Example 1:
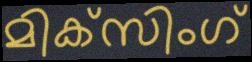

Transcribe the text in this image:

മിക്‌സിംഗ്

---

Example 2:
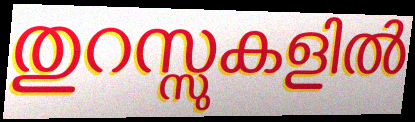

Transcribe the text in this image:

തുറസ്സുകളിൽ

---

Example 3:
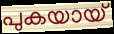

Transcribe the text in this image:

പുകയായ്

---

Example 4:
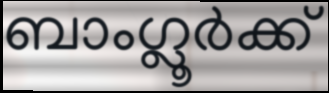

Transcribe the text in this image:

ബാംഗ്ലൂർക്ക്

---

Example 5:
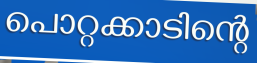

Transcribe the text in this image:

പൊറ്റക്കാടിന്റെ